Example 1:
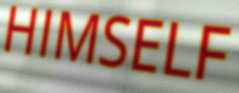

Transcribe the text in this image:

HIMSELF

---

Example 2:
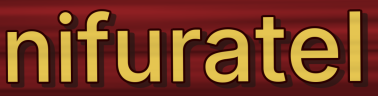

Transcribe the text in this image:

nifuratel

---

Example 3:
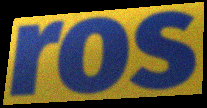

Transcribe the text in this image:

ros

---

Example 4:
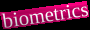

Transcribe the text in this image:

biometrics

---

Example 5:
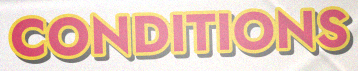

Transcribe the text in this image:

CONDITIONS